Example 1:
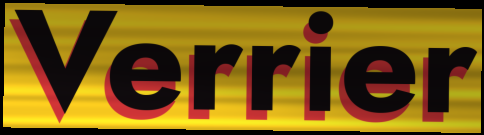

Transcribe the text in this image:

Verrier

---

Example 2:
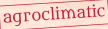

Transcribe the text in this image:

agroclimatic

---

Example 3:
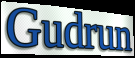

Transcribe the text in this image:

Gudrun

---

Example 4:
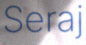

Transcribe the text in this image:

Seraj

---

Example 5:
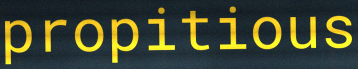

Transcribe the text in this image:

propitious